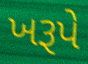
ખરૂપે